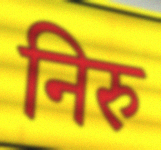
निरु